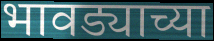
भावड्याच्या